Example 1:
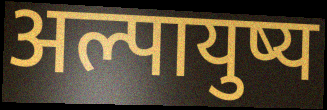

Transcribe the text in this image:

अल्पायुष्य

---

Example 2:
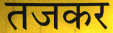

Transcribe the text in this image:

तजकर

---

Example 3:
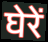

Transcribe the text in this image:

घेरें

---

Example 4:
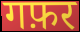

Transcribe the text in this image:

गफ़र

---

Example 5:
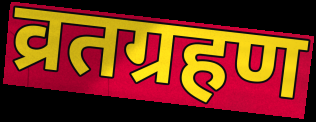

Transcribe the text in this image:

व्रतग्रहण